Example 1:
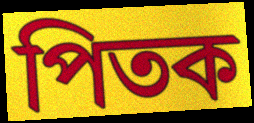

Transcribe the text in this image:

পিতক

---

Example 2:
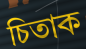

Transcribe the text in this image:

চিতাক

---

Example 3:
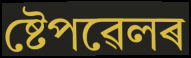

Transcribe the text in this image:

ষ্টেপৱেলৰ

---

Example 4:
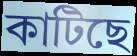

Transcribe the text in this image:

কাটিছে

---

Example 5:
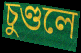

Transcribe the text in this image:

চুণ্ডলে